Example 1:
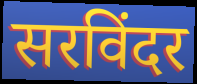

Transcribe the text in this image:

सरविंदर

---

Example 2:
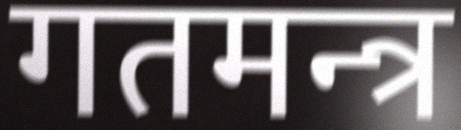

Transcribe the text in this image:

गतमन्त्र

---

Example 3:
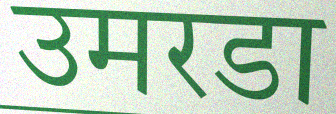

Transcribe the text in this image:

उमरडा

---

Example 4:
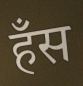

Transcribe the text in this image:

हँस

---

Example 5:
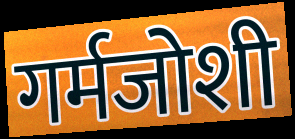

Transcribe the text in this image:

गर्मजोशी